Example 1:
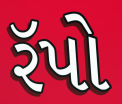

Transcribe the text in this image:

રૅપો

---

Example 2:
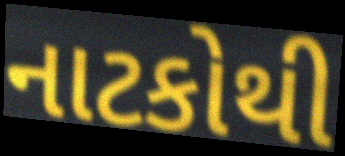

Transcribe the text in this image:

નાટકોથી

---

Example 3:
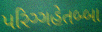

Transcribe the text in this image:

પરિગ્ગહેતબ્બા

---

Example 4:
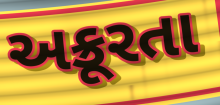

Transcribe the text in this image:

અક્રૂરતા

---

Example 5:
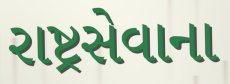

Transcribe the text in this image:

રાષ્ટ્રસેવાના